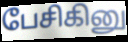
பேசிகினு